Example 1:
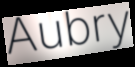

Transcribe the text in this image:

Aubry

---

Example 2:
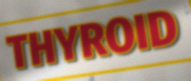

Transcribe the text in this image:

THYROID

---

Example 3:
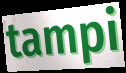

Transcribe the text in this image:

tampi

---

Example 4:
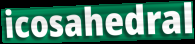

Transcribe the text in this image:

icosahedral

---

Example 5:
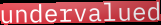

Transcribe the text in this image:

undervalued